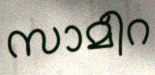
സാമീറ